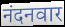
नंदनवार